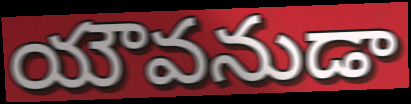
యౌవనుడా